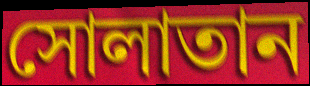
সোলাতান